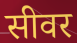
सीवर